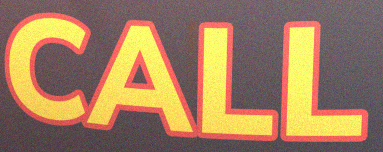
CALL